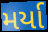
મર્યા